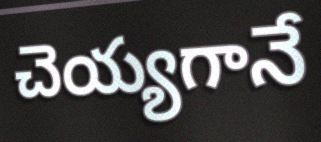
చెయ్యగానే